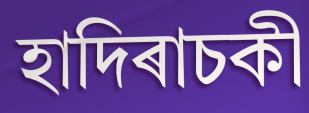
হাদিৰাচকী